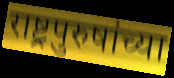
राष्ट्रपुरुषांच्या